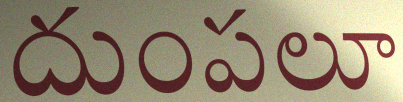
దుంపలూ